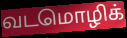
வடமொழிக்